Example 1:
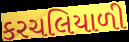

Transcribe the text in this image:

કરચલિયાળી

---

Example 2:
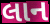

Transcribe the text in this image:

લાન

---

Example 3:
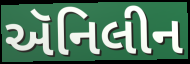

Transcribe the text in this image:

ઍનિલીન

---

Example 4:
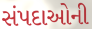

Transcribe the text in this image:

સંપદાઓની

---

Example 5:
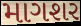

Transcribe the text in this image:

માગશર